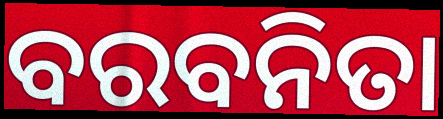
ବରବନିତା